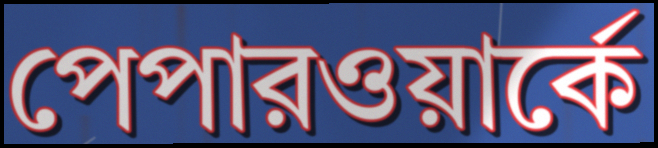
পেপারওয়ার্কে